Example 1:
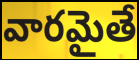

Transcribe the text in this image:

వారమైతే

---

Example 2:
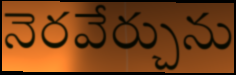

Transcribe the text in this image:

నెరవేర్చును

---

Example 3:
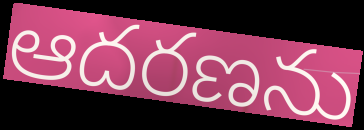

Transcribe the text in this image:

ఆదరణను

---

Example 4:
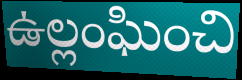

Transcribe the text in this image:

ఉల్లంఘించి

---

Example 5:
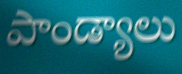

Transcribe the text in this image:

పాండ్యాలు